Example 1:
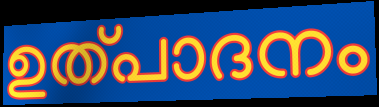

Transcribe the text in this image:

ഉത്പാദനം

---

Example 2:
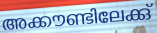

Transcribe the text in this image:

അക്കൗണ്ടിലേക്കു്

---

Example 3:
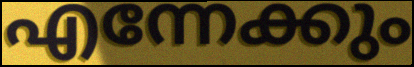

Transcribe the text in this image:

എന്നേക്കും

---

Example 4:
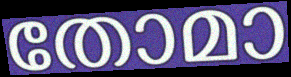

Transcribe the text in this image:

തോമാ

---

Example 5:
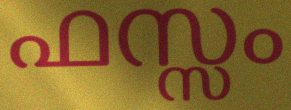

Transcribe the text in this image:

ഫസ്സം